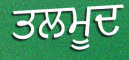
ਤਲਮੂਦ